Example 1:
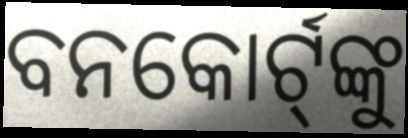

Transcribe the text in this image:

ବନକୋର୍ଟ୍‍ଙ୍କୁ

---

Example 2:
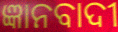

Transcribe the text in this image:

ଜ୍ଞାନବାଦୀ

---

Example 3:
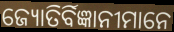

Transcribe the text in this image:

ଜ୍ୟୋତିର୍ବିଜ୍ଞାନୀମାନେ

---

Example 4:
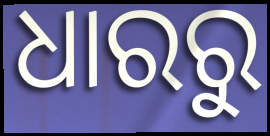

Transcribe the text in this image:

ଧାରରୁ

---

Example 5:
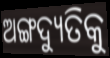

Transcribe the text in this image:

ଅଙ୍ଗଦ୍ୟୁତିକୁ